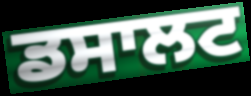
ਡਸਾਲਟ